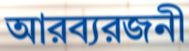
আরব্যরজনী